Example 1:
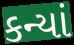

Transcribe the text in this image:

કન્યાં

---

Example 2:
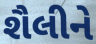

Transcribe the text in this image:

શૈલીને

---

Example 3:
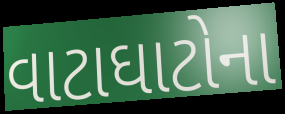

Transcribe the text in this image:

વાટાઘાટોના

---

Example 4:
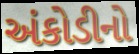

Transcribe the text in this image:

અંકોડીનો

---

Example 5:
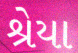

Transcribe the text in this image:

શ્રેયા